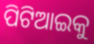
ପିଟିଆଇକୁ